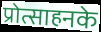
प्रोत्साहनके